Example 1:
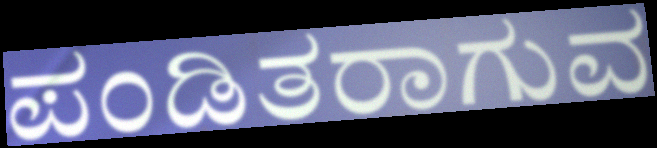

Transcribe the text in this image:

ಪಂಡಿತರಾಗುವ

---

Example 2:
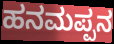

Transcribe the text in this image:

ಹನಮಪ್ಪನ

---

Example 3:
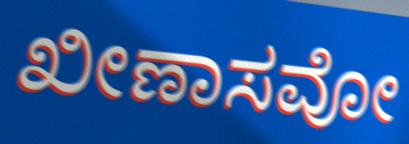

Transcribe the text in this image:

ಖೀಣಾಸವೋ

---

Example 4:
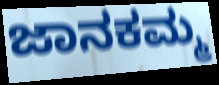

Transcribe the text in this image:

ಜಾನಕಮ್ಮ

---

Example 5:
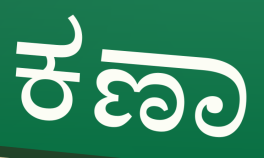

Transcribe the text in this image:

ಕಣಾ